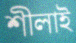
শীলাই